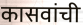
कासवांची